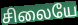
சிலையே